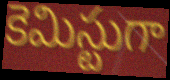
కెమిస్టుగా